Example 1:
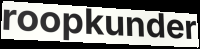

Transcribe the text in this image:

roopkunder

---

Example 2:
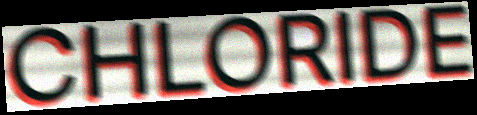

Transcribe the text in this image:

CHLORIDE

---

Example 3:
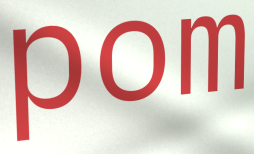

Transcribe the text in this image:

pom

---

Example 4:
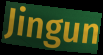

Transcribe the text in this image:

Jingun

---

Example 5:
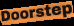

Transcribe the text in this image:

Doorstep